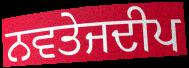
ਨਵਤੇਜਦੀਪ